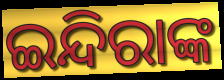
ଇନ୍ଦିରାଙ୍କ